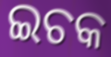
ଇଚକ